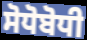
ਸੋਧੋਬੋਧੀ